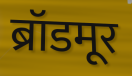
ब्रॉडमूर